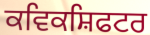
ਕਵਿਕਸ਼ਿਫਟਰ